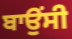
ਬਾਉਂਸੀ